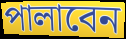
পালাবেন